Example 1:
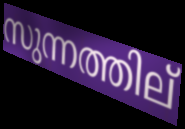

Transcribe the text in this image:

സുന്നത്തില്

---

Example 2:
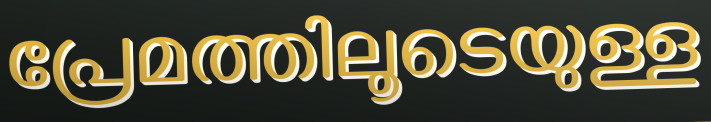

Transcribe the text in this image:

പ്രേമത്തിലൂടെയുള്ള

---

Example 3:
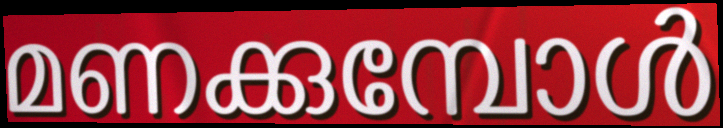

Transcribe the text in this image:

മണക്കുമ്പോൾ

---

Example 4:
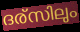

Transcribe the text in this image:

ദര്സിലും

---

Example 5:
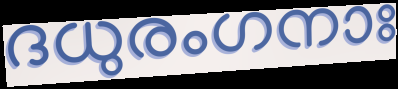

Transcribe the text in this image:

ദധുരംഗനാഃ